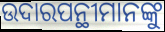
ଉଦାରପନ୍ଥୀମାନଙ୍କୁ